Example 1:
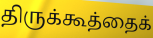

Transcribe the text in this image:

திருக்கூத்தைக்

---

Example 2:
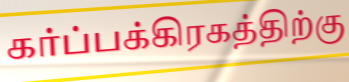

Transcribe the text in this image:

கர்ப்பக்கிரகத்திற்கு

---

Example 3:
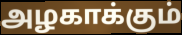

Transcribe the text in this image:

அழகாக்கும்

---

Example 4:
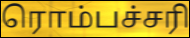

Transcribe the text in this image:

ரொம்பச்சரி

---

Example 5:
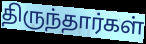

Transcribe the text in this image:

திருந்தார்கள்